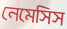
নেমেসিস